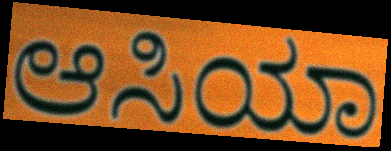
ಆಸಿಯಾ